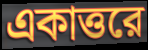
একাত্তরে